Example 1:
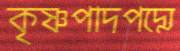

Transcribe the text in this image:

কৃষ্ণপাদপদ্মে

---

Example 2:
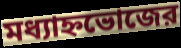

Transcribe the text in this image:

মধ্যাহ্নভোজের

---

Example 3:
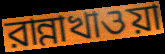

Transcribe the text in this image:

রান্নাখাওয়া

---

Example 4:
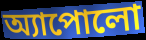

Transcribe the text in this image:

অ্যাপোলো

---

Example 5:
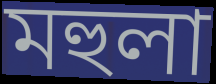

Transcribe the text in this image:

মহুলা